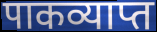
पाकव्याप्त